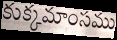
కుక్కమాంసము